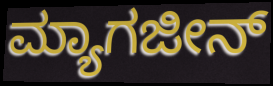
ಮ್ಯಾಗಜೀನ್